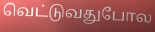
வெட்டுவதுபோல